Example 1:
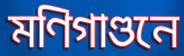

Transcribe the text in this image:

মণিগাণ্ডনে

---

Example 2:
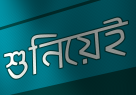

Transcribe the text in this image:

শুনিয়েই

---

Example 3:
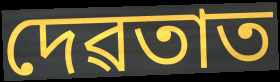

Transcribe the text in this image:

দেৱতাত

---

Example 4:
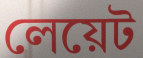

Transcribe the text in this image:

লেয়েট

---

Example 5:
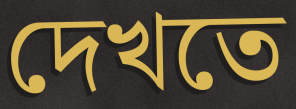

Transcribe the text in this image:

দেখতে